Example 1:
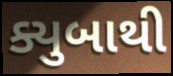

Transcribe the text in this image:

ક્યુબાથી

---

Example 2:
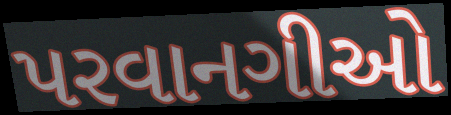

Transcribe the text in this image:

પરવાનગીઓ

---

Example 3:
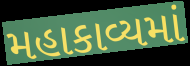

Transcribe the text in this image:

મહાકાવ્યમાં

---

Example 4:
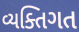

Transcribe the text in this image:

વ્યક્તિગત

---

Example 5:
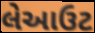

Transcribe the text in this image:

લેઆઉટ